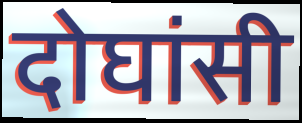
दोघांसी